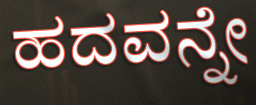
ಹದವನ್ನೇ